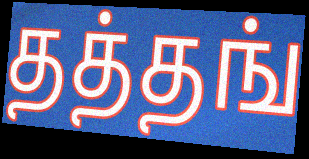
தத்தங்